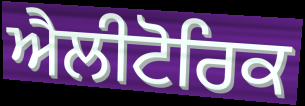
ਐਲੀਟੋਰਿਕ